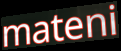
mateni